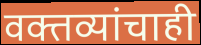
वक्तव्यांचाही